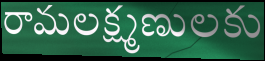
రామలక్ష్మణులకు